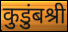
कुडुंबश्री